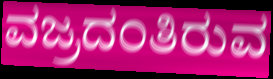
ವಜ್ರದಂತಿರುವ